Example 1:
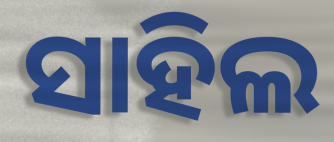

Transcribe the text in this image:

ସାହିଲ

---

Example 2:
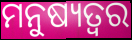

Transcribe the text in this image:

ମନୁଷ୍ୟତ୍ବର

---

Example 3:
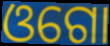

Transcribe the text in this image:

ଓଗୋ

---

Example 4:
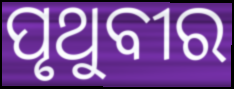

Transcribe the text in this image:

ପୃଥୁବୀର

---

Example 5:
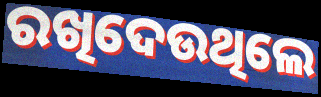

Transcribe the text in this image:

ରଖିଦେଉଥିଲେ